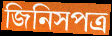
জিনিসপত্র